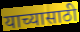
याच्यासाठी